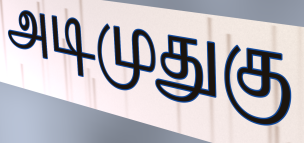
அடிமுதுகு